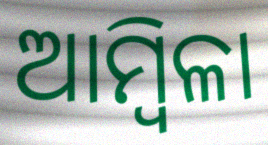
ଆମ୍ବିଳା